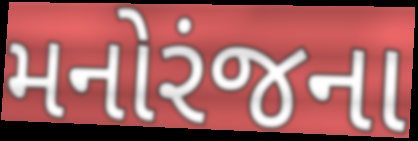
મનોરંજના